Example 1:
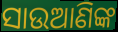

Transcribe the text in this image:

ସାଉଆଣିଙ୍କ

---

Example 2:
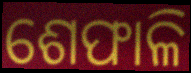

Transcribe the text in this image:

ଶେଫାଳି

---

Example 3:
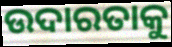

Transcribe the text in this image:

ଉଦାରତାକୁ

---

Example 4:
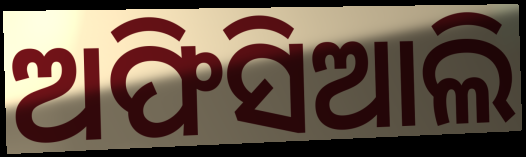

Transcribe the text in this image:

ଅଫିସିଆଲି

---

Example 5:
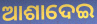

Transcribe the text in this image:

ଆଶାଦେଇ